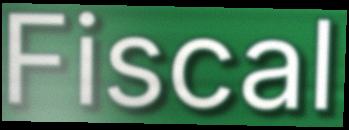
Fiscal